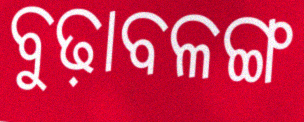
ବୁଢ଼ାବଳଙ୍ଗ